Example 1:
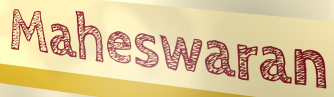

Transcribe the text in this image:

Maheswaran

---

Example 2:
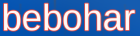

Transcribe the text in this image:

bebohar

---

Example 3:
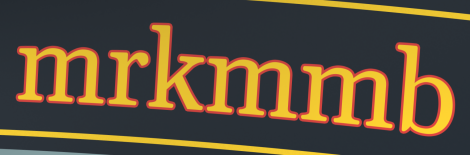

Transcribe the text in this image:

mrkmmb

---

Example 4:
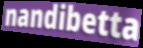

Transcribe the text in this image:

nandibetta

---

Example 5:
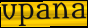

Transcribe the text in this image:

upana